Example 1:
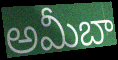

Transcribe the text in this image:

అమీబా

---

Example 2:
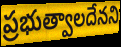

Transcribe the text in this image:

ప్రభుత్వాలదేనని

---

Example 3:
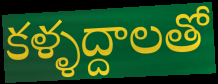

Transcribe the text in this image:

కళ్ళద్దాలతో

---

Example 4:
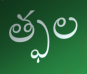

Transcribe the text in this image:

త్ఫల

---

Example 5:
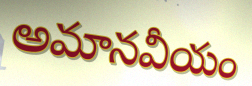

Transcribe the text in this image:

అమానవీయం